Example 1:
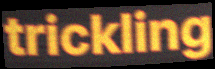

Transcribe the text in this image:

trickling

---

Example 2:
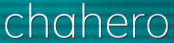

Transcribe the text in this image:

chahero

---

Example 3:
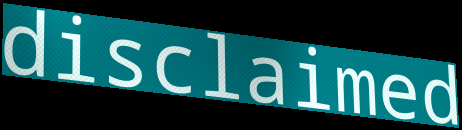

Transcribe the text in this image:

disclaimed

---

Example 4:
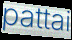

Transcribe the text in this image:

pattai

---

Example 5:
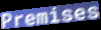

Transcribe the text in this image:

Premises